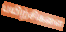
பயிற்சிகளை